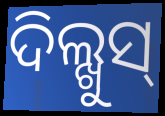
ଦିଲ୍ଖୁସ୍